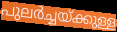
പുലർച്ചയ്ക്കുള്ള